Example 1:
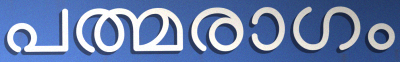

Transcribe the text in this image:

പത്മരാഗം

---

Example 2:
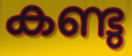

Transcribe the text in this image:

കണ്ടു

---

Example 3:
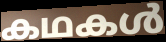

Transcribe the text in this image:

കഥകൾ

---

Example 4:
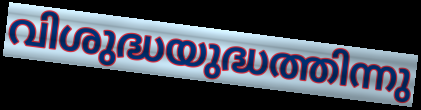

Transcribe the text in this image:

വിശുദ്ധയുദ്ധത്തിന്നു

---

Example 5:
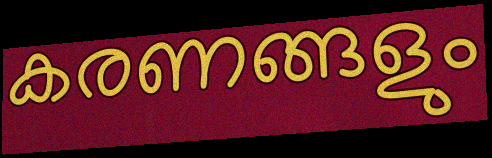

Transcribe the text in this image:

കരണങ്ങളും